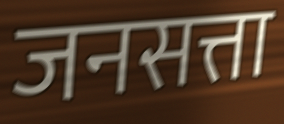
जनसत्ता